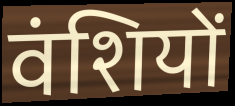
वंशियों